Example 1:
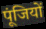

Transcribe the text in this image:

पूंजियों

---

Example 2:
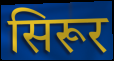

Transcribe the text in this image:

सिरूर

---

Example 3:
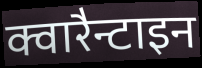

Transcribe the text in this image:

क्वारैन्टाइन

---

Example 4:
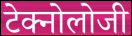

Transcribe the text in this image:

टेक्नोलोजी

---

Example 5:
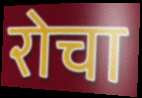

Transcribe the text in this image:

रोचा